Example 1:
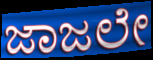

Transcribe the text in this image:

ಜಾಜಲೇ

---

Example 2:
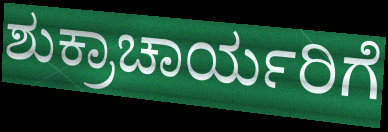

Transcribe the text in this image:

ಶುಕ್ರಾಚಾರ್ಯರಿಗೆ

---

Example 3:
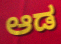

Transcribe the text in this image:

ಆಡ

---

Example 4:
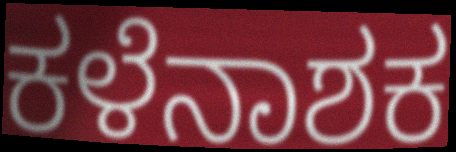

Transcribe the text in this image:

ಕಳೆನಾಶಕ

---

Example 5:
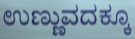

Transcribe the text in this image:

ಉಣ್ಣುವದಕ್ಕೂ